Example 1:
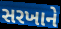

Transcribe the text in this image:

સરખાને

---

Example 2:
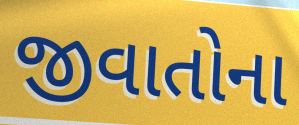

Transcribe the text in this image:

જીવાતોના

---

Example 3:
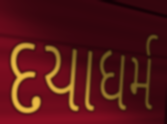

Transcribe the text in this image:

દયાધર્મ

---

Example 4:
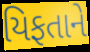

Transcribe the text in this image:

યિફતાને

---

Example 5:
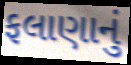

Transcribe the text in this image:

ફલાણાનું